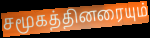
சமூகத்தினரையும்